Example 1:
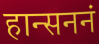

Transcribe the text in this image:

हान्सननं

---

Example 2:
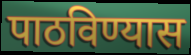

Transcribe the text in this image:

पाठविण्यास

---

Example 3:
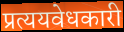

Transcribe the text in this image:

प्रत्ययवेधकारी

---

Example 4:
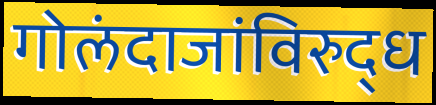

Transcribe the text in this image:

गोलंदाजांविरुद्ध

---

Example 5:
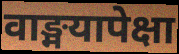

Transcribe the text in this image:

वाङ्मयापेक्षा